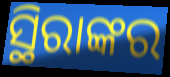
ସ୍ଥିରାଙ୍କର